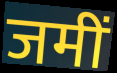
जमीं